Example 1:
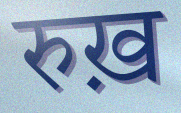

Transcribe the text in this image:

रुख़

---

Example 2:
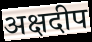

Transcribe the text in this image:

अक्षदीप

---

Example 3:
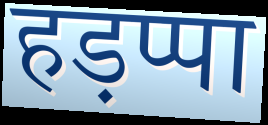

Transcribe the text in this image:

हड़प्पा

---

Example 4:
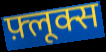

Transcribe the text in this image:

फ़्लूक्स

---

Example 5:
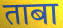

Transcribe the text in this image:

ताबा